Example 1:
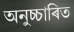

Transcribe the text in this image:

অনুচ্চাৰিত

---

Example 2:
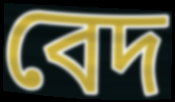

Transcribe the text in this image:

বেদ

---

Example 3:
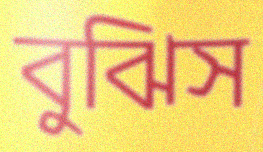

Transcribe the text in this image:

বুঝিস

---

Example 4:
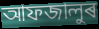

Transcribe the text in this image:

আফজালুৰ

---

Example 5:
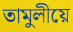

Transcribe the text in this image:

তামুলীয়ে